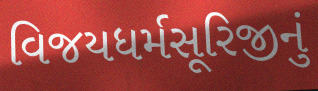
વિજયધર્મસૂરિજીનું